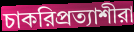
চাকরিপ্রত্যাশীরা